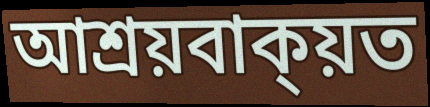
আশ্ৰয়বাক্য়ত